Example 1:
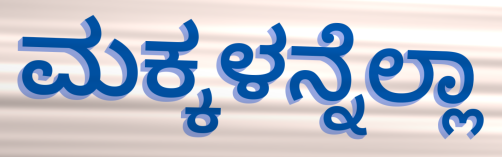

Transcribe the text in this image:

ಮಕ್ಕಳನ್ನೆಲ್ಲಾ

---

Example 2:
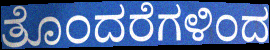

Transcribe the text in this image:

ತೊಂದರೆಗಳಿಂದ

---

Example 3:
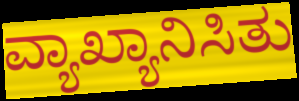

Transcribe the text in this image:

ವ್ಯಾಖ್ಯಾನಿಸಿತು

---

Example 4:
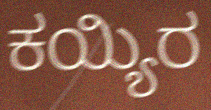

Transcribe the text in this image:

ಕಯ್ಯಿರ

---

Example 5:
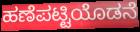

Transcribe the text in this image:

ಹಣೆಪಟ್ಟಿಯೊಡನೆ